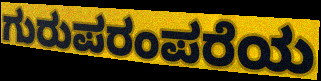
ಗುರುಪರಂಪರೆಯ